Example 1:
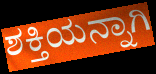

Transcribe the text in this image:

ಶಕ್ತಿಯನ್ನಾಗಿ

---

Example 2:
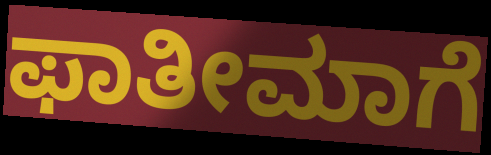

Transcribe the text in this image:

ಫಾತೀಮಾಗೆ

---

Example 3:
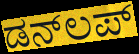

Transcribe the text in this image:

ಡನ್‌ಲಪ್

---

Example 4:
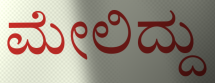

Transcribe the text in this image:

ಮೇಲಿದ್ದು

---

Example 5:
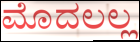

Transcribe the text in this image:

ಮೊದಲಲ್ಲ